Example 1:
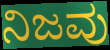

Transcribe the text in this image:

ನಿಜವು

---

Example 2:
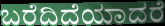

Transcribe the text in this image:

ಬರೆದಿದೆಯಾದರೆ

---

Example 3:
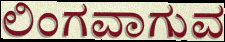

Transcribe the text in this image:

ಲಿಂಗವಾಗುವ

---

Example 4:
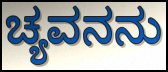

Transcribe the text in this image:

ಚ್ಯವನನು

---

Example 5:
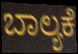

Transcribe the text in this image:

ಬಾಲ್ಯಕೆ